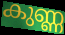
കുണ്ണ